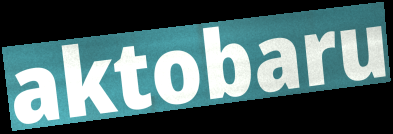
aktobaru